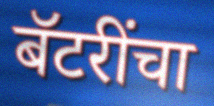
बॅटरींचा